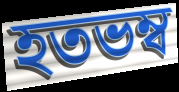
হতভম্ব